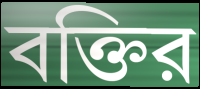
বক্তির